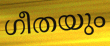
ഗീതയും